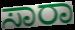
ಸಾರಾ